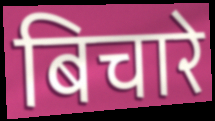
बिचारे